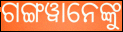
ଗଙ୍ଗୱାନେଙ୍କୁ